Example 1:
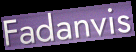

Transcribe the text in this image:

Fadanvis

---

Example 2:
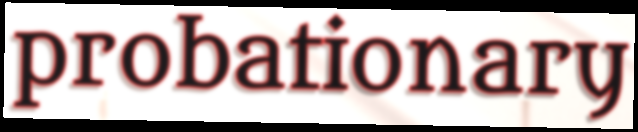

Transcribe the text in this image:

probationary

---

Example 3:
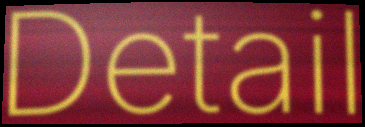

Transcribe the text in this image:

Detail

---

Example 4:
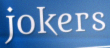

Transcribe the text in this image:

jokers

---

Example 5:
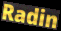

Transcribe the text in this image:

Radin